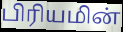
பிரியமின்